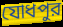
যোধপুর